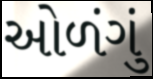
ઓળંગું